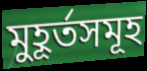
মুহূৰ্তসমূহ